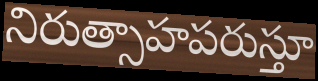
నిరుత్సాహపరుస్తూ